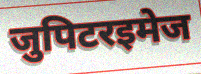
जुपिटरइमेज